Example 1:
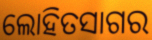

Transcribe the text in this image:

ଲୋହିତସାଗର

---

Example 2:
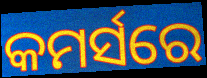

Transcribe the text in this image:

କମର୍ସରେ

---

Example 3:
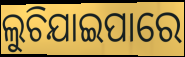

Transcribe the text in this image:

ଲୁଚିଯାଇପାରେ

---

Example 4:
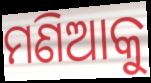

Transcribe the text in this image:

ମଣିଆକୁ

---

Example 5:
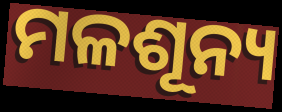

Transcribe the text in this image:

ମଳଶୂନ୍ୟ